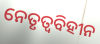
ନେତୃତ୍ୱବିହୀନ